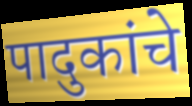
पादुकांचे